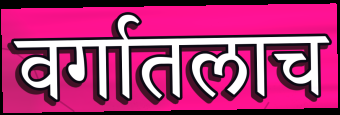
वर्गातलाच